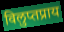
विलुप्तप्राय